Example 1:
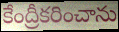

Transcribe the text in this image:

కేంద్రీకరించాను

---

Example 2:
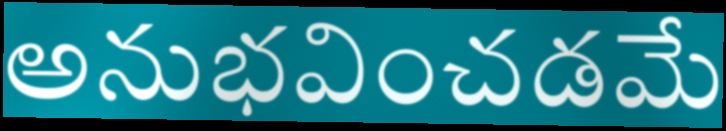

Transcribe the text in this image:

అనుభవించడమే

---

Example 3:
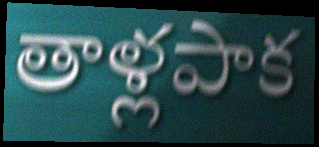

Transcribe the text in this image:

తాళ్లపాక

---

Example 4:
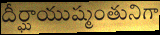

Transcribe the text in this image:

దీర్ఘాయుష్మంతునిగా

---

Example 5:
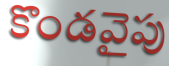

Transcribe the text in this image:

కొండవైపు